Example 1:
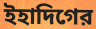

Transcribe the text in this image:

ইহাদিগের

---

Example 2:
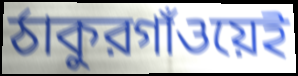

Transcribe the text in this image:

ঠাকুরগাঁওয়েই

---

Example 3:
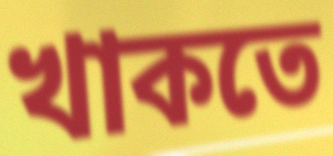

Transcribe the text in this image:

খাকতে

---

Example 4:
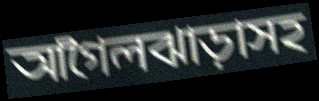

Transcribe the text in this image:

আগৈলঝাড়াসহ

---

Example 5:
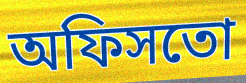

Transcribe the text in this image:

অফিসতো